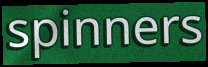
spinners